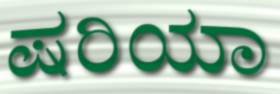
ಷರಿಯಾ